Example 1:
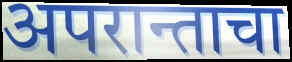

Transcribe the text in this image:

अपरान्ताचा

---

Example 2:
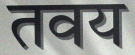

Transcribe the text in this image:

तवय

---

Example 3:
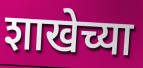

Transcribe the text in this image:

शाखेच्या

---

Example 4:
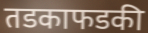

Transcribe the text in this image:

तडकाफडकी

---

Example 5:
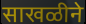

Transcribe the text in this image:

साखळीने